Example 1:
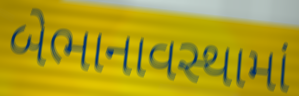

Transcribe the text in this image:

બેભાનાવસ્થામાં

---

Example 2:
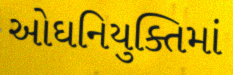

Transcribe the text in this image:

ઓઘનિયુક્તિમાં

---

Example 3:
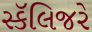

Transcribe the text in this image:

સ્કૅલિજરે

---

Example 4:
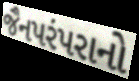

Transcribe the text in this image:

જૈનપરંપરાનો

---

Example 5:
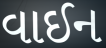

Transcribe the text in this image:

વાઈન